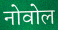
नोवोल